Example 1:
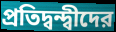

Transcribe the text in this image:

প্রতিদ্বন্দ্বীদের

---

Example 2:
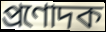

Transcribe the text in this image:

প্রণোদক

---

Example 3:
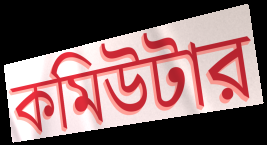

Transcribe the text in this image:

কমিউটার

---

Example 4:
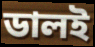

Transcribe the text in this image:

ডালই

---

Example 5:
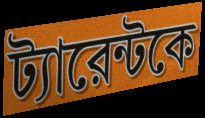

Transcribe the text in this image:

ট্যারেন্টকে